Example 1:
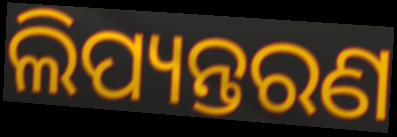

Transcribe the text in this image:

ଲିପ୍ୟନ୍ତରଣ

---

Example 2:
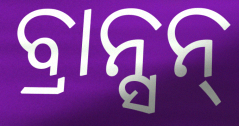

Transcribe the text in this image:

ବ୍ରାନ୍ସନ୍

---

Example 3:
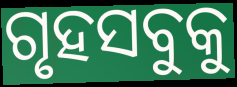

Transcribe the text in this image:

ଗୃହସବୁକୁ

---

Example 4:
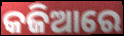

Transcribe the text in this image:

କଜିଆରେ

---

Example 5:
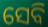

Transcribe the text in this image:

ସେବି